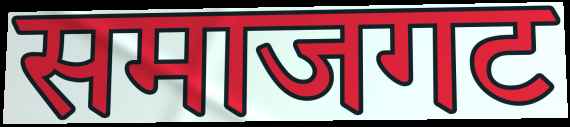
समाजगट